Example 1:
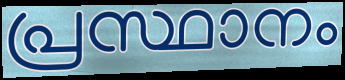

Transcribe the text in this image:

പ്രസ്ഥാനം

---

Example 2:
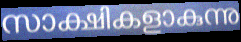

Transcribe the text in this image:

സാക്ഷികളാകുന്നു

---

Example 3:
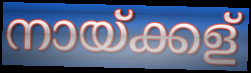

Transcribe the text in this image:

നായ്ക്കള്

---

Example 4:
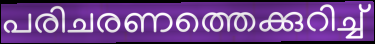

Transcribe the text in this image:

പരിചരണത്തെക്കുറിച്ച്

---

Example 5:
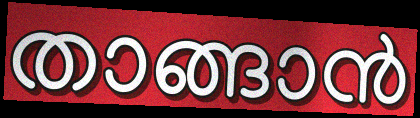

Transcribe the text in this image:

താങ്ങാൻ